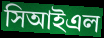
সিআইএল